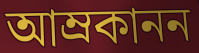
আম্রকানন